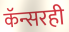
कॅन्सरही